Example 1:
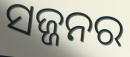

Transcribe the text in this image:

ସଜ୍ଜନର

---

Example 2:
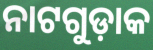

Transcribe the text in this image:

ନାଟଗୁଡ଼ାକ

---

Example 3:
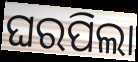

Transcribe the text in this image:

ଘରପିଲା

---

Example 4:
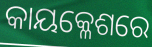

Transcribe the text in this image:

କାୟକ୍ଳେଶରେ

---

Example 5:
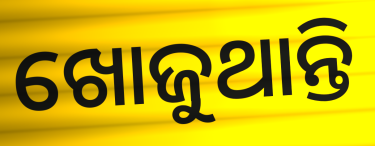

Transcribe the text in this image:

ଖୋଜୁଥାନ୍ତି